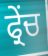
ਫ੍ਰੇਂਚ